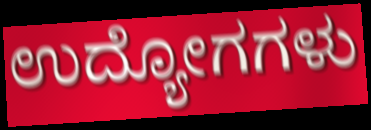
ಉದ್ಯೋಗಗಳು